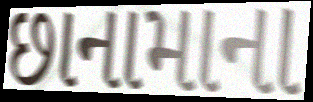
છાનામાના